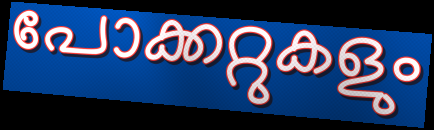
പോക്കറ്റുകളും